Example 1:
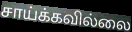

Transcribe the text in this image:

சாய்க்கவில்லை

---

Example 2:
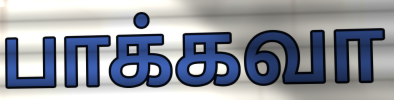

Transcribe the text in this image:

பாக்கவா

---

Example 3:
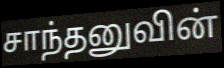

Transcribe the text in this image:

சாந்தனுவின்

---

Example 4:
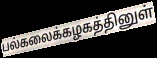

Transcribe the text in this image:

பல்கலைக்கழகத்தினுள்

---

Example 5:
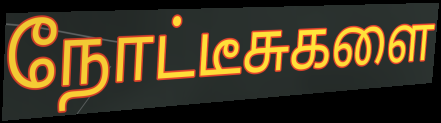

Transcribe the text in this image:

நோட்டீசுகளை